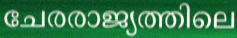
ചേരരാജ്യത്തിലെ